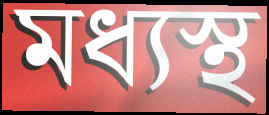
মধ্যস্থ